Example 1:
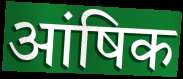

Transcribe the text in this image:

आंषिक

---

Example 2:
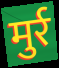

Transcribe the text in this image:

मुर्र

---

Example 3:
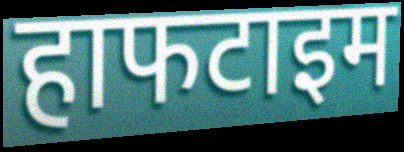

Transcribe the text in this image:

हाफटाइम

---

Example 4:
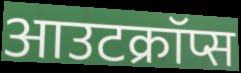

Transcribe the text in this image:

आउटक्रॉप्स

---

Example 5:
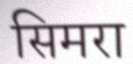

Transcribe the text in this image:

सिमरा